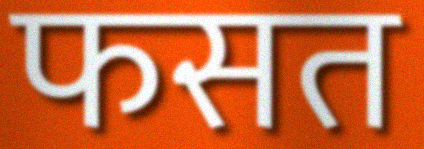
फसत